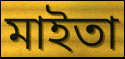
মাইতা